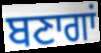
ਬਣਾਗਾਂ